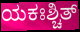
ಯಕಃಶ್ಚಿತ್